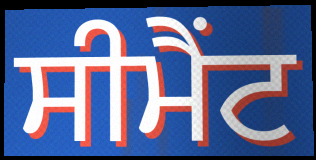
ਸੀਮੈੰਟ